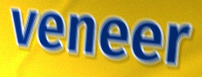
veneer